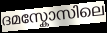
ദമസ്കോസിലെ